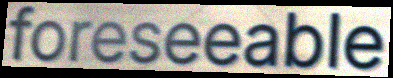
foreseeable